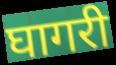
घागरी